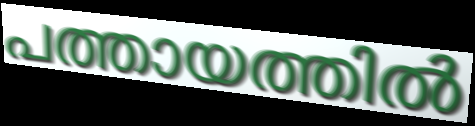
പത്തായത്തിൽ